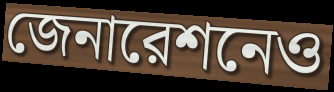
জেনারেশনেও